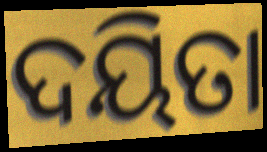
ଦୟିତା